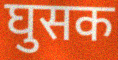
घुसक